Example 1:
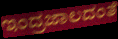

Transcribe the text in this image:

ಇಂದ್ರಜಾಲದಂತೆ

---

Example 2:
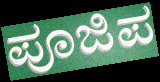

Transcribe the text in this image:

ಪೂಜಿಪ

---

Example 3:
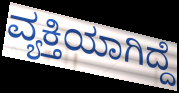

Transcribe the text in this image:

ವ್ಯಕ್ತಿಯಾಗಿದ್ದೆ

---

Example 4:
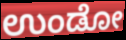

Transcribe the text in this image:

ಉಂಡೋ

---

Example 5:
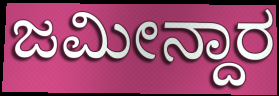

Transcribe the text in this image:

ಜಮೀನ್ದಾರ